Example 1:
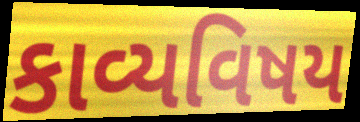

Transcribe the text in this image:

કાવ્યવિષય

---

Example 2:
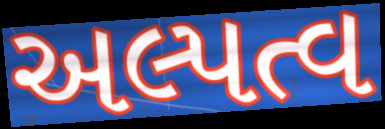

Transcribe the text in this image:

અલ્પત્વ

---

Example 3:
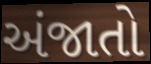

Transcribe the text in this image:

અંજાતો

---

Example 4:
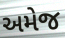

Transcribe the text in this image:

અમેજ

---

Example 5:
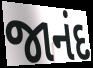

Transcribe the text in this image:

જાનંદ